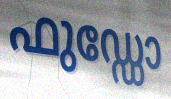
ഫുഡ്ഡോ